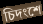
চিদংশে